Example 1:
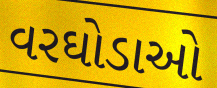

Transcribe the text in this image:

વરઘોડાઓ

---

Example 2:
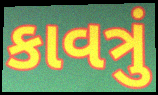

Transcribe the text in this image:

કાવત્રું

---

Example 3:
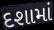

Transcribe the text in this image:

દશામાં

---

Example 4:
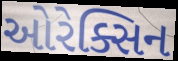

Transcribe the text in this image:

ઓરેક્સિન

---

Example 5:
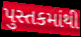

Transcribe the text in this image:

પુસ્તકમાંથી